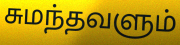
சுமந்தவளும்